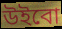
উইবো